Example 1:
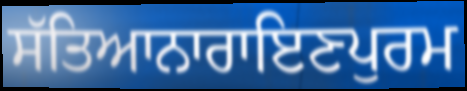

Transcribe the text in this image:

ਸੱਤਿਆਨਾਰਾਇਣਪੁਰਮ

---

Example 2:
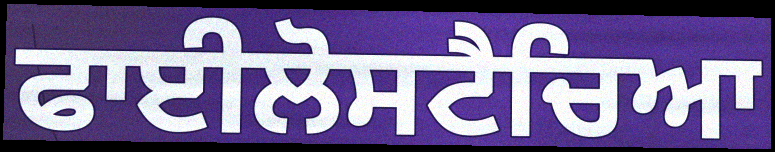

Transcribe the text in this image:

ਫਾਈਲੋਸਟੈਚਿਆ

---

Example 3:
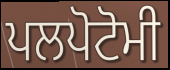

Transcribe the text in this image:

ਪਲਪੋਟੋਮੀ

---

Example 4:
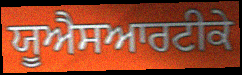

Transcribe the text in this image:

ਯੂਐਸਆਰਟੀਕੇ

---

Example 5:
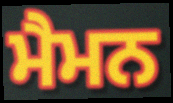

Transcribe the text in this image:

ਮੈਮਨ